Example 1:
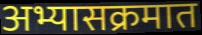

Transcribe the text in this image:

अभ्यासक्रमात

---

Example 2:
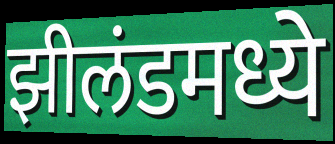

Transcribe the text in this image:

झीलंडमध्ये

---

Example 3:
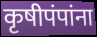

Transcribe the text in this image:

कृषीपंपांना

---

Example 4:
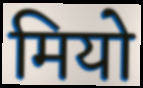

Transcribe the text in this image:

मियो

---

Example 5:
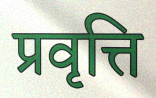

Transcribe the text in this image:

प्रवृत्ति